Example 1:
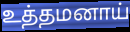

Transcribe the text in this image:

உத்தமனாய்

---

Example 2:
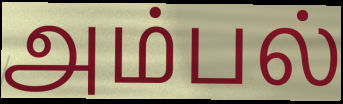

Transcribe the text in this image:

அம்பல்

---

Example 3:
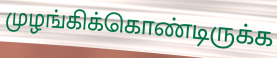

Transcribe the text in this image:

முழங்கிக்கொண்டிருக்க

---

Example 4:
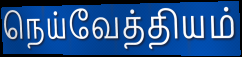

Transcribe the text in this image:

நெய்வேத்தியம்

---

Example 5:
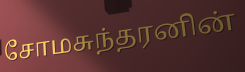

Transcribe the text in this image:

சோமசுந்தரனின்